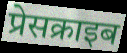
प्रेसक्राइब